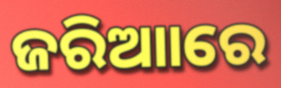
ଜରିଆାରେ